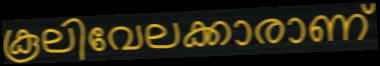
കൂലിവേലക്കാരാണ്